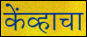
केंव्हाचा